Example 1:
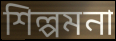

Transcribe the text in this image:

শিল্পমনা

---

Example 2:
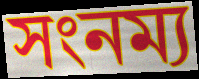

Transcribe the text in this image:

সংনম্য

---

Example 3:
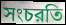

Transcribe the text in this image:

সংচরতি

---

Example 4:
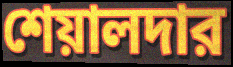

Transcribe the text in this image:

শেয়ালদার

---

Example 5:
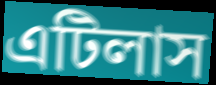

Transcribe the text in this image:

এটিলাস